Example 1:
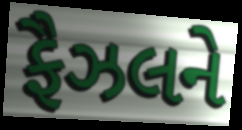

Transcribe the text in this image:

ફૈઝલને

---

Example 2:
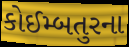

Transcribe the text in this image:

કોઈમ્બતુરના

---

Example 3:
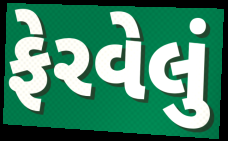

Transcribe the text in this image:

ફેરવેલું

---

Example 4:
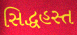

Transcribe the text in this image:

સિદ્ધહસ્ત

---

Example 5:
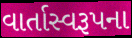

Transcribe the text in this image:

વાર્તાસ્વરૂપના